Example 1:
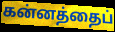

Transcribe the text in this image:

கன்னத்தைப்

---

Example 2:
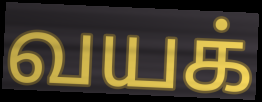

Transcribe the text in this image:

வயக்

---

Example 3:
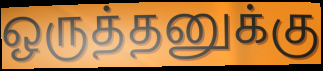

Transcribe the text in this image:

ஒருத்தனுக்கு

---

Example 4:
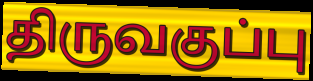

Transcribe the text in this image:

திருவகுப்பு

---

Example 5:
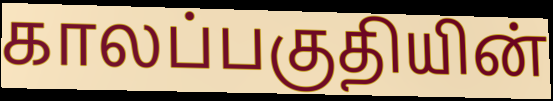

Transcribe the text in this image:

காலப்பகுதியின்